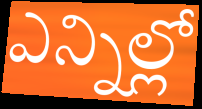
ఎన్నిల్లో